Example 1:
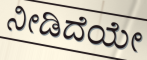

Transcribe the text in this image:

ನೀಡಿದೆಯೇ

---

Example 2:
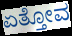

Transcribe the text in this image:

ಏತ್ತೋವ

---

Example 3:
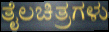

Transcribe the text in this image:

ತೈಲಚಿತ್ರಗಳು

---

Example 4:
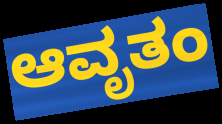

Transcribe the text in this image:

ಆವೃತಂ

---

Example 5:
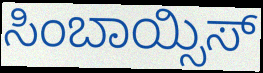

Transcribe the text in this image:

ಸಿಂಬಾಯ್ಸಿಸ್